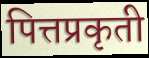
पित्तप्रकृती